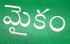
మైకం